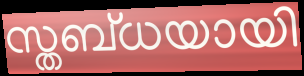
സ്തബ്ധയായി